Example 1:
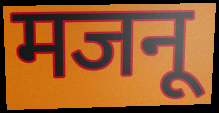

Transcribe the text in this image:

मजनू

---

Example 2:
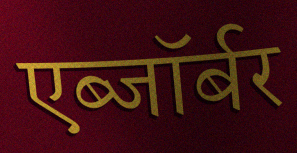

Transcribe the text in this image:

एब्जॉर्बर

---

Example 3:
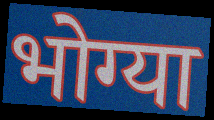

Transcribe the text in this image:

भोग्या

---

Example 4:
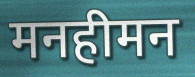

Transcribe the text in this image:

मनहीमन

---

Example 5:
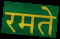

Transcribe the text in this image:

रमते